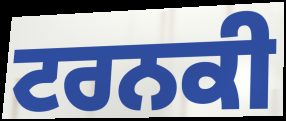
ਟਰਨਕੀ